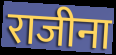
राजीना